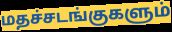
மதச்சடங்குகளும்